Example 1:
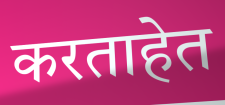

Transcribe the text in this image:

करताहेत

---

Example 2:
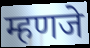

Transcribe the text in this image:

म्हणजे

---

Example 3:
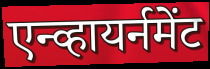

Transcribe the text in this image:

एन्व्हायर्नमेंट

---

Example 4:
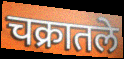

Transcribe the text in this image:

चक्रातले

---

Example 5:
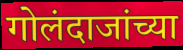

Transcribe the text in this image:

गोलंदाजांच्या